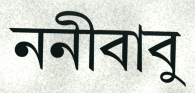
ননীবাবু